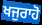
ਖਜੁਰਾਹੋ